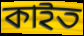
কাইত